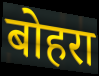
बोहरा